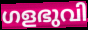
ഗളഭുവി